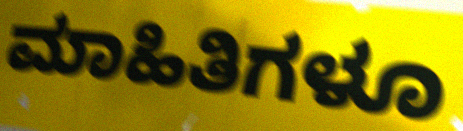
ಮಾಹಿತಿಗಳೂ